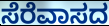
ಸೆರೆವಾಸದ